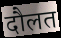
दौलत